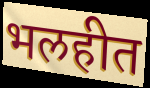
भलहीत